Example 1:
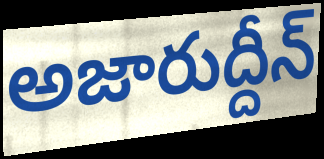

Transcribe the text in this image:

అజారుద్దీన్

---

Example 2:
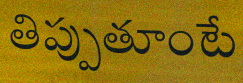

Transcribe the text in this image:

తిప్పుతూంటే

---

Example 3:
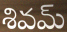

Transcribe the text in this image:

శివమ్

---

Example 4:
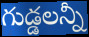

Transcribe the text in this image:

గుడ్డలన్నీ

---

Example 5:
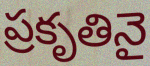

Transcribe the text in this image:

ప్రకృతినై